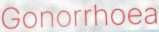
Gonorrhoea